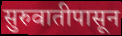
सुरुवातीपासून